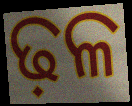
ଢ଼ଳ